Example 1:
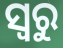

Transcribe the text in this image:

ସ୍ୱରୁ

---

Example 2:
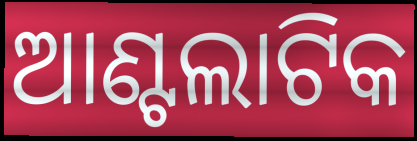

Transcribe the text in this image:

ଆଣ୍ଟଲାଟିକ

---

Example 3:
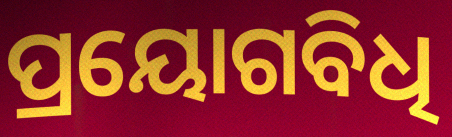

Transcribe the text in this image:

ପ୍ରୟୋଗବିଧି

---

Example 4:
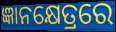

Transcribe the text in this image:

ଜ୍ଞାନକ୍ଷେତ୍ରରେ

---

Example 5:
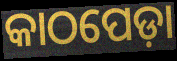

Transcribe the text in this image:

କାଠପେଡ଼ା